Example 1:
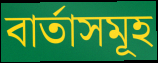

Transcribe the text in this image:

বাৰ্তাসমূহ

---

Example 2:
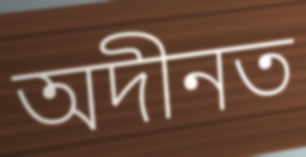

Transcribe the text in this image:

অদীনত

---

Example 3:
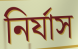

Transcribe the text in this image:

নিৰ্যাস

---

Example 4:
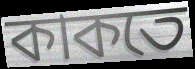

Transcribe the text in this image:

কাকতে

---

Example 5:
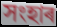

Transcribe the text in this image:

সংহাৰ